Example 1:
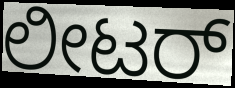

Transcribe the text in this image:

ಲೀಟರ್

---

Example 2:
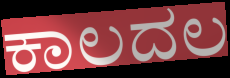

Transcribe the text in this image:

ಕಾಲದಲ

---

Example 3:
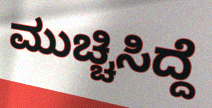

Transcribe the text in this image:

ಮುಚ್ಚಿಸಿದ್ದೆ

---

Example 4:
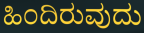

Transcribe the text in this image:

ಹಿಂದಿರುವುದು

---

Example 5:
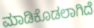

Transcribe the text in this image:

ಮಾಡಿಕೊಡಲಾಗಿದೆ